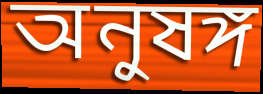
অনুষঙ্গ